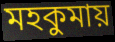
মহকুমায়